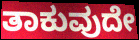
ತಾಕುವುದೇ